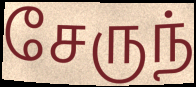
சேருந்